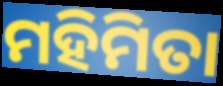
ମହିମିତା